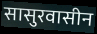
सासुरवासीन